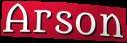
Arson